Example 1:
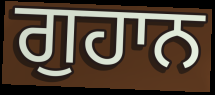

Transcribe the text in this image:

ਗੁਹਾਨ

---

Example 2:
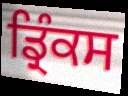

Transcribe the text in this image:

ਡ੍ਰਿੰਕਸ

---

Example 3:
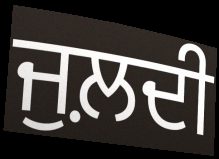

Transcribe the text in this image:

ਜੁਲ਼ਦੀ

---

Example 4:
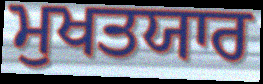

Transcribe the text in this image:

ਮੁਖਤਯਾਰ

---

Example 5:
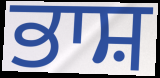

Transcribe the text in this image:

ਭਾਸ਼